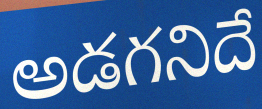
అడగనిదే